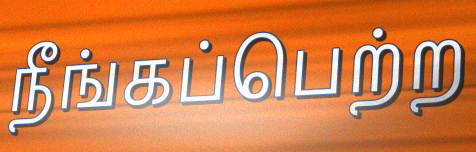
நீங்கப்பெற்ற